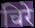
चिरे